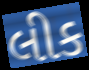
લીક